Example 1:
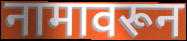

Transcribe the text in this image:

नामावरून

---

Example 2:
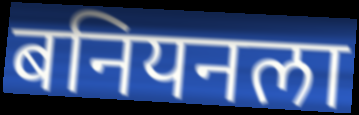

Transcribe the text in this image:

बनियनला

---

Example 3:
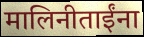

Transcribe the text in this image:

मालिनीताईंना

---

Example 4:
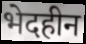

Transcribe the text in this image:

भेदहीन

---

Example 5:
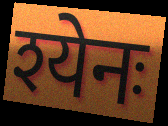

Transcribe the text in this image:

श्येनः